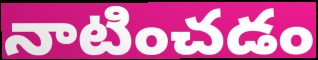
నాటించడం